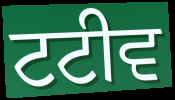
ਟਟੀਵ